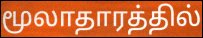
மூலாதாரத்தில்